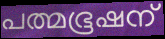
പത്മഭൂഷന്